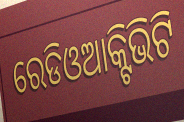
ରେଡିଓଆକ୍ଟିଭିଟି